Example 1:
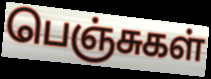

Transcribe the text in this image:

பெஞ்சுகள்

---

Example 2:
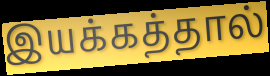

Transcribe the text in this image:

இயக்கத்தால்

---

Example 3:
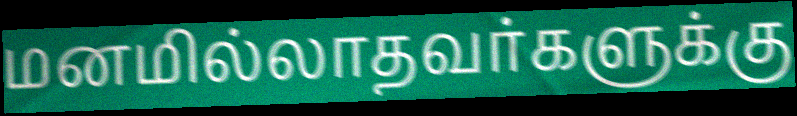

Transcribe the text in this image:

மனமில்லாதவர்களுக்கு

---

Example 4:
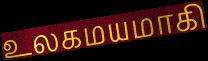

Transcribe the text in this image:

உலகமயமாகி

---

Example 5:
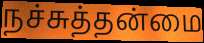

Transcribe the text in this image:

நச்சுத்தன்மை